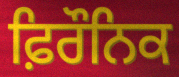
ਫ਼ਿਰੌਨਿਕ